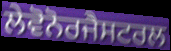
ਲੇਵੋਨੋਰਜੈਸਟਰਲ